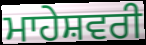
ਮਾਹੇਸ਼ਵਰੀ